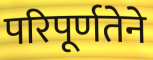
परिपूर्णतेने